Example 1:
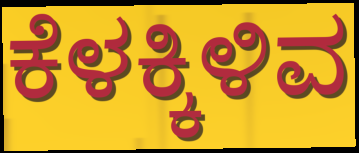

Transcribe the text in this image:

ಕೆಳಕ್ಕಿಳಿವ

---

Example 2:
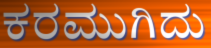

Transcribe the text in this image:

ಕರಮುಗಿದು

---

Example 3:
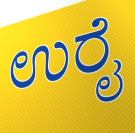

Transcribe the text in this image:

ಉರೈ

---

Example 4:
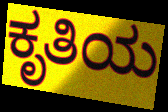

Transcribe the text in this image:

ಕೃತಿಯ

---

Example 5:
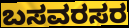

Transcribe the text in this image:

ಬಸವರಸರ